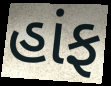
હાંફ